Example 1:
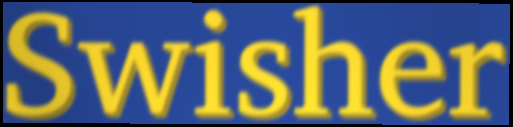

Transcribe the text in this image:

Swisher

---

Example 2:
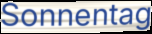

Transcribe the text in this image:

Sonnentag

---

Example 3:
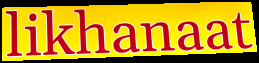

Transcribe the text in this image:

likhanaat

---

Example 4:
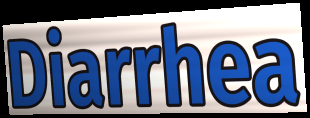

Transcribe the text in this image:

Diarrhea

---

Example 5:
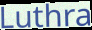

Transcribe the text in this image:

Luthra